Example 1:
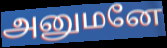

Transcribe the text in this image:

அனுமனே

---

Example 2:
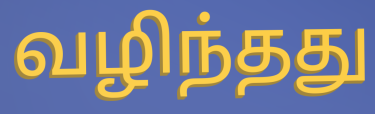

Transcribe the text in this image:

வழிந்தது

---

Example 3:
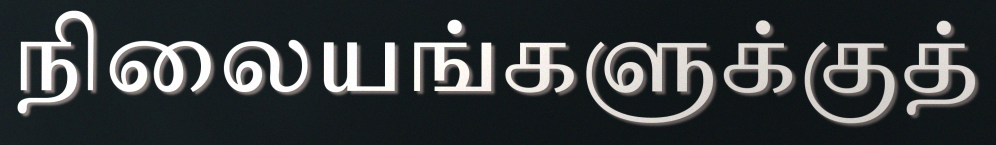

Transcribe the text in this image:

நிலையங்களுக்குத்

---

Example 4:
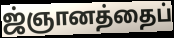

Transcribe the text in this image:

ஜ்ஞானத்தைப்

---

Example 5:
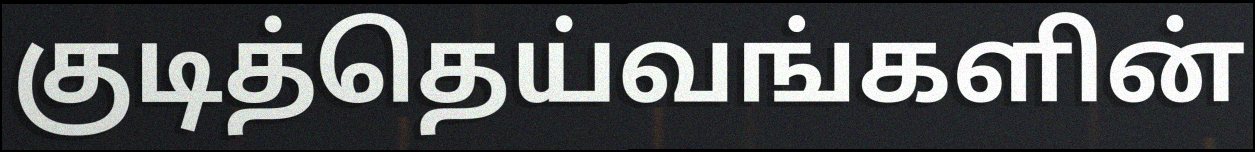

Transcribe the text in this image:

குடித்தெய்வங்களின்